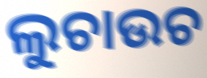
ଲୁଚାଉଚ